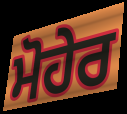
ਮੋਹੇਰ